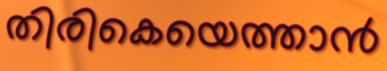
തിരികെയെത്താൻ